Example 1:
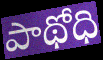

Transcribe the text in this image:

పాథోధి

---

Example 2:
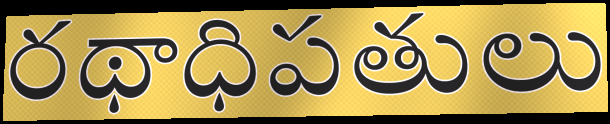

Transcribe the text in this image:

రథాధిపతులు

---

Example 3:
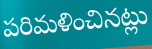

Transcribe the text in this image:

పరిమళించినట్లు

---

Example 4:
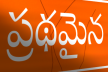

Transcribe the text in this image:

ప్రథమైన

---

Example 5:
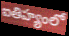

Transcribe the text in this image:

ఐతిహ్యంలో